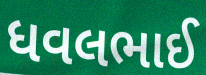
ધવલભાઈ